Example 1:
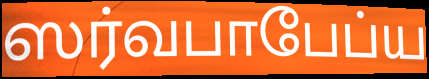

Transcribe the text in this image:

ஸர்வபாபேப்ய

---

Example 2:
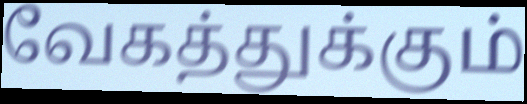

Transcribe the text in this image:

வேகத்துக்கும்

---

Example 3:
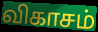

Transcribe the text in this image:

விகாசம்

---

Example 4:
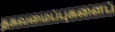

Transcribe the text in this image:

தகவமைப்புகளைப்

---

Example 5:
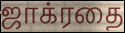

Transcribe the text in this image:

ஜாக்ரதை